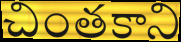
చింతకాని